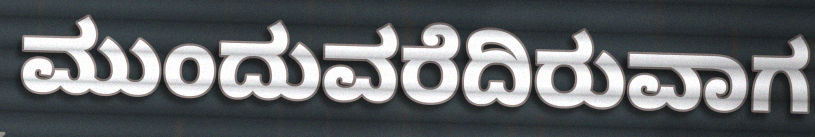
ಮುಂದುವರೆದಿರುವಾಗ